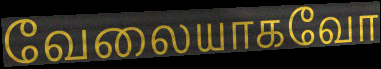
வேலையாகவோ